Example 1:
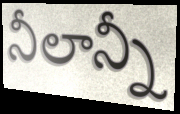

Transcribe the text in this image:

నీలాన్నీ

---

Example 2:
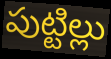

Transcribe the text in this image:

పుట్టిల్లు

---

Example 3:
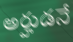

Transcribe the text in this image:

అర్హుడనే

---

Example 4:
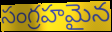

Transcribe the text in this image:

సంగ్రహమైన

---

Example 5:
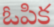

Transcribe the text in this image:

ఓపిక